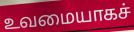
உவமையாகச்